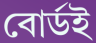
বোর্ডই